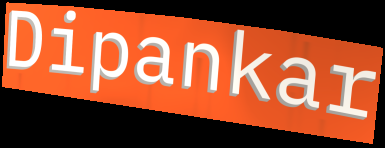
Dipankar